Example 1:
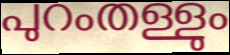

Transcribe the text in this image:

പുറംതള്ളും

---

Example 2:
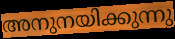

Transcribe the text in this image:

അനുനയിക്കുന്നു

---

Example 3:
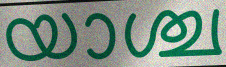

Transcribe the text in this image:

യാശ്ച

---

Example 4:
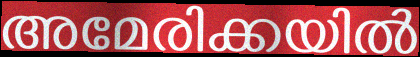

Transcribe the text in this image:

അമേരിക്കയിൽ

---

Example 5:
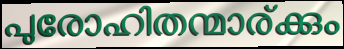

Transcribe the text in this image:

പുരോഹിതന്മാര്ക്കും